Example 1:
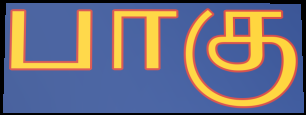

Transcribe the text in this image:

பாகு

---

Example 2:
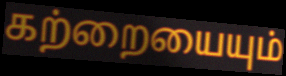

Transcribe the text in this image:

கற்றையையும்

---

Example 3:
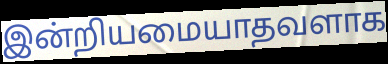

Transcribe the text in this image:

இன்றியமையாதவளாக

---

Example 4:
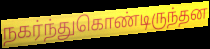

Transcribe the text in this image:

நகர்ந்துகொண்டிருந்தன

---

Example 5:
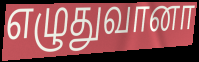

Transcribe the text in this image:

எழுதுவானா